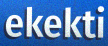
ekekti